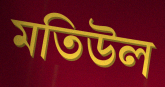
মতিউল